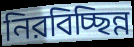
নিরবিচ্ছিন্ন